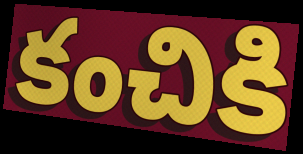
కంచికి